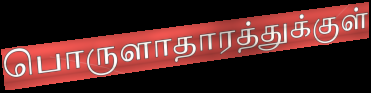
பொருளாதாரத்துக்குள்